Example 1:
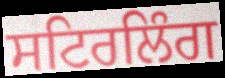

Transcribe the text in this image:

ਸਟਿਰਲਿੰਗ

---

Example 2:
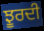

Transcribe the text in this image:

ਝੂਰਦੀ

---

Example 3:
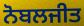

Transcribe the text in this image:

ਨੋਬਲਜੀਤ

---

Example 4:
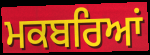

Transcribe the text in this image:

ਮਕਬਰਿਆਂ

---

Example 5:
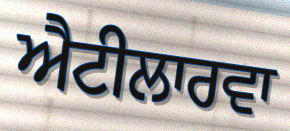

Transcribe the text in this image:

ਐਟੀਲਾਰਵਾ